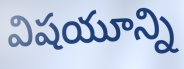
విషయూన్ని